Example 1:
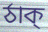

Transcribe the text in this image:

ঠাক্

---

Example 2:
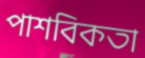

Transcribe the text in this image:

পাশবিকতা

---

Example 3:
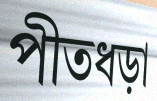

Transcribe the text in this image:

পীতধড়া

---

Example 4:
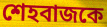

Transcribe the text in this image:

শেহবাজকে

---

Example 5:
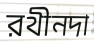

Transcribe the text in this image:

রথীনদা